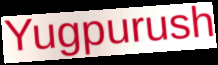
Yugpurush